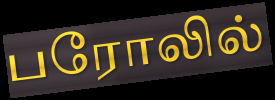
பரோலில்